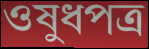
ওষুধপত্র